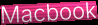
Macbook